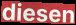
diesen